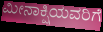
ಮೀನಾಕ್ಷಿಯವರಿಗೆ